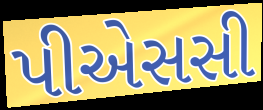
પીએસસી